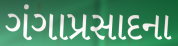
ગંગાપ્રસાદના